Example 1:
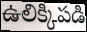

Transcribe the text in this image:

ఉలిక్కిపడి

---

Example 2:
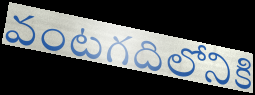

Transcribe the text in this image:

వంటగదిలోనికి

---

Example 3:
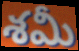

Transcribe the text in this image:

శమీ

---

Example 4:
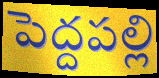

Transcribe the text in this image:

పెద్దపల్లి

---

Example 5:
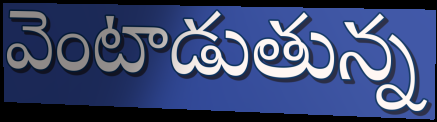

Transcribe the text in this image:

వెంటాడుతున్న